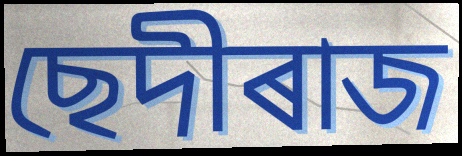
ছেদীৰাজ